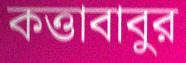
কত্তাবাবুর